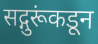
सद्गुरूंकडून